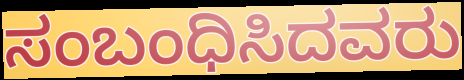
ಸಂಬಂಧಿಸಿದವರು